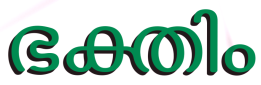
ഭക്തിം